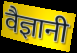
वैज्ञानी